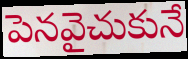
పెనవైచుకునే